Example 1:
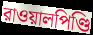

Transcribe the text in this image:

রাওয়ালপিণ্ডি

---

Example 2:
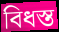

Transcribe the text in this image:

বিধস্ত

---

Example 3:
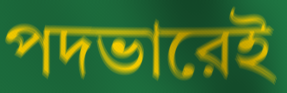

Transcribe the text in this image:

পদভারেই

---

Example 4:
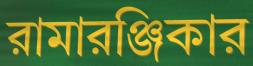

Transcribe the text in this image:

রামারঞ্জিকার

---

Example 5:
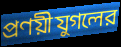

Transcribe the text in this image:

প্রণয়ীযুগলের